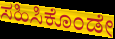
ಸಹಿಸಿಕೊಂಡೇ